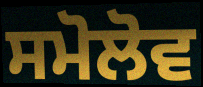
ਸਮੋਲੋਵ